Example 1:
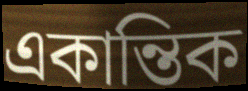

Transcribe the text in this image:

একান্তিক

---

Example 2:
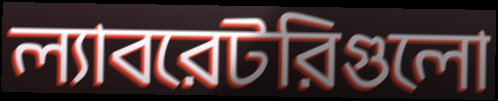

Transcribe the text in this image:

ল্যাবরেটরিগুলো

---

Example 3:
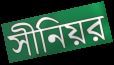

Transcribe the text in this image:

সীনিয়র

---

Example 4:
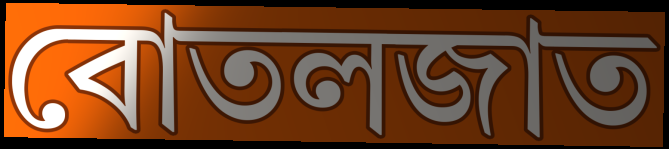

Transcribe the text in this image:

বোতলজাত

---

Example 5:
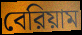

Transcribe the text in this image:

বেরিয়াম